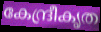
കേന്ദ്രീകൃത